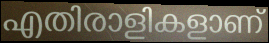
എതിരാളികളാണ്